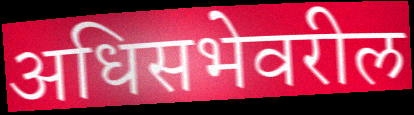
अधिसभेवरील